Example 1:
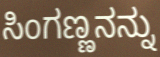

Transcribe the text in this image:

ಸಿಂಗಣ್ಣನನ್ನು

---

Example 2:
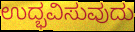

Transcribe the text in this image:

ಉದ್ಭವಿಸುವುದು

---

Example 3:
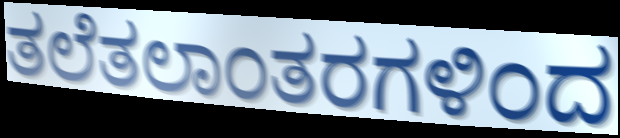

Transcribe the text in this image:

ತಲೆತಲಾಂತರಗಳಿಂದ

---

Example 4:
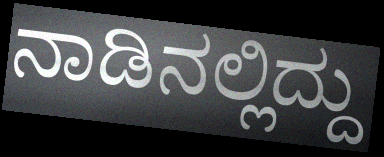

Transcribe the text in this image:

ನಾಡಿನಲ್ಲಿದ್ದು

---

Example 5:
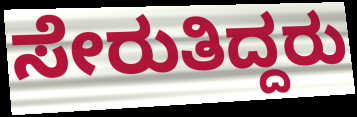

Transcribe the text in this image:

ಸೇರುತಿದ್ದರು